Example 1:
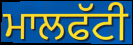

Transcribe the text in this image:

ਮਾਲਫੱਟੀ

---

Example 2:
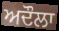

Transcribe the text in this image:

ਅਦੌਲਾ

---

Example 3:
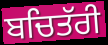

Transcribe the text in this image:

ਬਚਿਤੱਰੀ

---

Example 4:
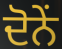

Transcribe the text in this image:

ਦੋਨੇਂ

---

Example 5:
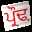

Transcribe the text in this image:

ਪ੍ਰੌਢ਼